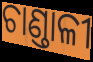
ଚାଣ୍ଡାଳୀ